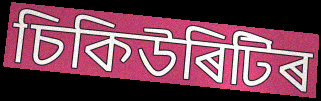
চিকিউৰিটিৰ